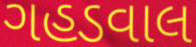
ગહડવાલ